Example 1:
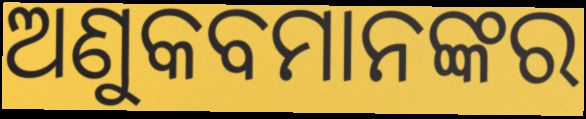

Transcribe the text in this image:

ଅଣୁକବମାନଙ୍କର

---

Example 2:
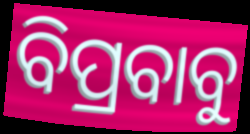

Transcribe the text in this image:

ବିପ୍ରବାବୁ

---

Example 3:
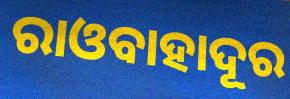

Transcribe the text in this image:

ରାଓବାହାଦୂର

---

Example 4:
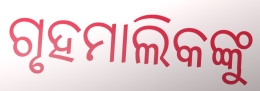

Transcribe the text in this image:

ଗୃହମାଲିକଙ୍କୁ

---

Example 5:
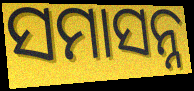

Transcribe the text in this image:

ସମାସନ୍ନ